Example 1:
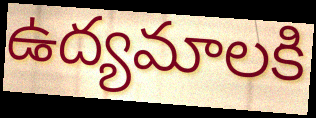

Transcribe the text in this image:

ఉద్యమాలకి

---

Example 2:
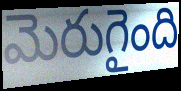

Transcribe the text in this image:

మెరుగైంది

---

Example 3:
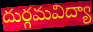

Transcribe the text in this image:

దుర్గమవిద్యా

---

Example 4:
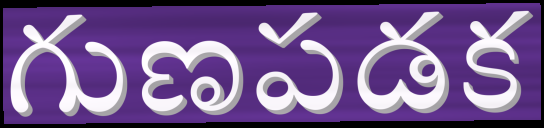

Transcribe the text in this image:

గుణపడక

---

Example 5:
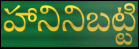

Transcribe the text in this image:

హానినిబట్టి